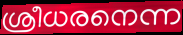
ശ്രീധരനെന്ന